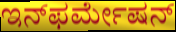
ಇನ್‌ಫರ್ಮೇಷನ್